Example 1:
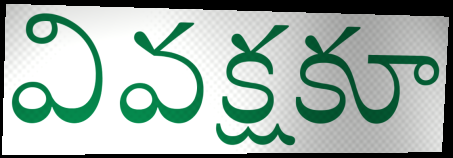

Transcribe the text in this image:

వివక్షకూ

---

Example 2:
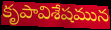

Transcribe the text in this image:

కృపావిశేషమున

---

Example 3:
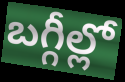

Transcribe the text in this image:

బగ్గీల్లో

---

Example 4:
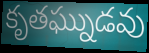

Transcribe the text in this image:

కృతఘ్నుడవు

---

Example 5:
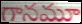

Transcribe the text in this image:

గానమూ